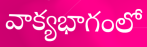
వాక్యభాగంలో